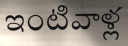
ఇంటివాళ్ల